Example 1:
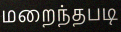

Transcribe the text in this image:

மறைந்தபடி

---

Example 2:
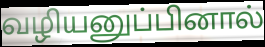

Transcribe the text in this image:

வழியனுப்பினால்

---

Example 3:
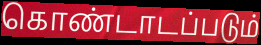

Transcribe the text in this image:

கொண்டாடப்படும்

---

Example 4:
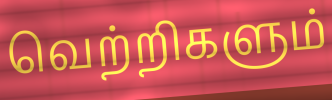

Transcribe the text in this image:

வெற்றிகளும்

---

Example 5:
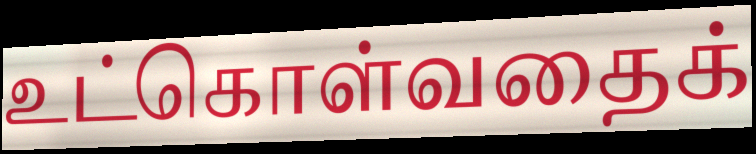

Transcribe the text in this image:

உட்கொள்வதைக்